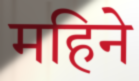
महिने